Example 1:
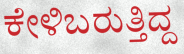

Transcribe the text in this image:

ಕೇಳಿಬರುತ್ತಿದ್ದ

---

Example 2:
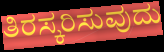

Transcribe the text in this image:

ತಿರಸ್ಕರಿಸುವುದು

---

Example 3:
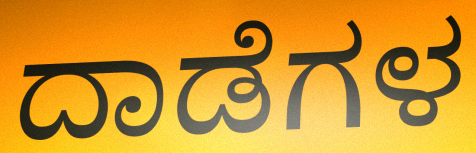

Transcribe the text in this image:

ದಾಡೆಗಳ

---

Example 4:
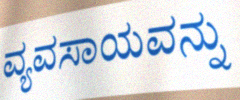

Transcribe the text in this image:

ವ್ಯವಸಾಯವನ್ನು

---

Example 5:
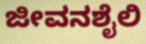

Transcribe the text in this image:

ಜೀವನಶೈಲಿ